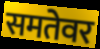
समतेवर